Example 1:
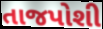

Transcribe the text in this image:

તાજપોશી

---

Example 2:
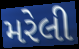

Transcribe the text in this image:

મરેલી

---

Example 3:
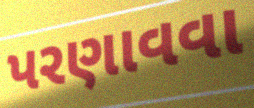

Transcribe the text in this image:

પરણાવવા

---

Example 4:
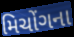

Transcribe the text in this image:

મિચોંગના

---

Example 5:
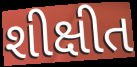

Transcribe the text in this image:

શીક્ષીત